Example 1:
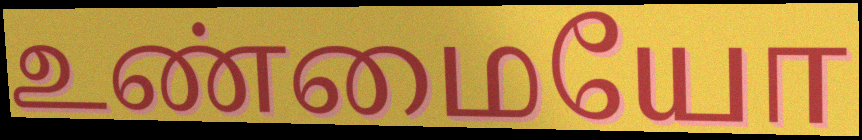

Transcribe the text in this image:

உண்மையோ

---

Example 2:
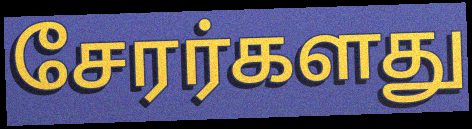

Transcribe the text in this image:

சேரர்களது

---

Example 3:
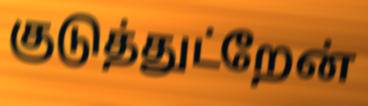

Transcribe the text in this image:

குடுத்துட்றேன்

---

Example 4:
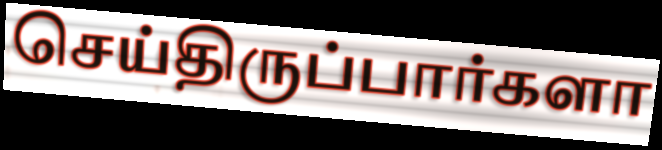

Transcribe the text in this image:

செய்திருப்பார்களா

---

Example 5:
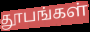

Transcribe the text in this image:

தூபங்கள்